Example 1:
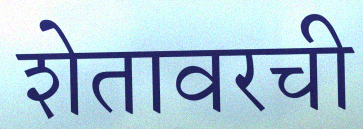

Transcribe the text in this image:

शेतावरची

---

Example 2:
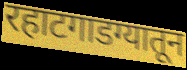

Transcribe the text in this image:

रहाटगाडग्यातून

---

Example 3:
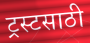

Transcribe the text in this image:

ट्रस्टसाठी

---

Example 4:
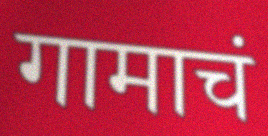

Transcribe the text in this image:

गामाचं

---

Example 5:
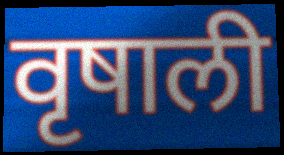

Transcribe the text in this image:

वृषाली